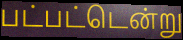
பட்பட்டென்று